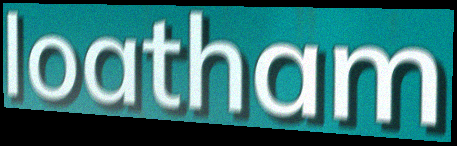
Ioatham